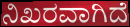
ನಿಖರವಾಗಿದೆ